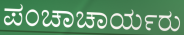
ಪಂಚಾಚಾರ್ಯರು